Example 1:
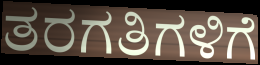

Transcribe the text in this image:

ತರಗತಿಗಳಿಗೆ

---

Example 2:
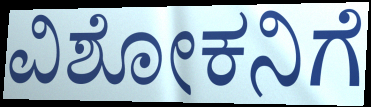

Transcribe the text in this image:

ವಿಶೋಕನಿಗೆ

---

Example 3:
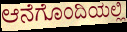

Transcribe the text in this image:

ಆನೆಗೊಂದಿಯಲ್ಲಿ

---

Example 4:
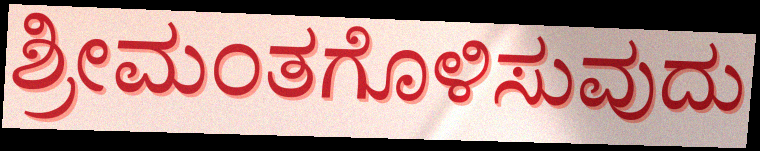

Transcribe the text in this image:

ಶ್ರೀಮಂತಗೊಳಿಸುವುದು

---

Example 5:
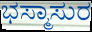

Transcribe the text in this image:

ಭಸ್ಮಾಸುರ